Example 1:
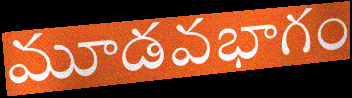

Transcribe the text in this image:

మూడవభాగం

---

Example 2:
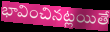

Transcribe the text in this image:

భావించినట్లయితే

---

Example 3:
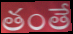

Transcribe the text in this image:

తంతే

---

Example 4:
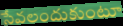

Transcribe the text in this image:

సేవలందుకుంటూ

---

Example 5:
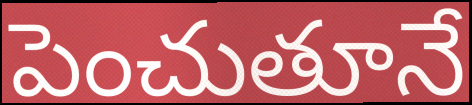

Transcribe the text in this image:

పెంచుతూనే